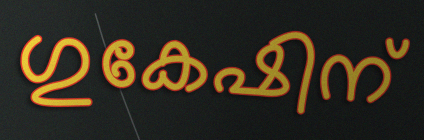
ഗുകേഷിന്